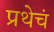
प्रथेचं